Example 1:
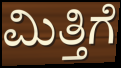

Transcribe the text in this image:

ಮಿತ್ತಿಗೆ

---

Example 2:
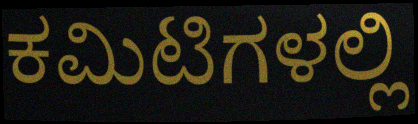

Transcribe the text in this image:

ಕಮಿಟಿಗಳಲ್ಲಿ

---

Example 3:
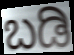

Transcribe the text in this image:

ಬಡಿ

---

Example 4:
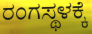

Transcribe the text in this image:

ರಂಗಸ್ಥಳಕ್ಕೆ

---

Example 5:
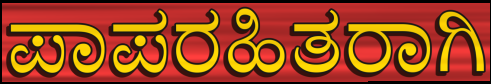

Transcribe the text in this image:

ಪಾಪರಹಿತರಾಗಿ